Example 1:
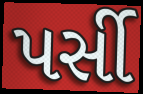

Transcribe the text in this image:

પર્સી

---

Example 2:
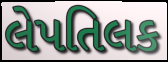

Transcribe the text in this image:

લેપતિલક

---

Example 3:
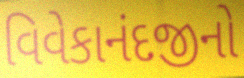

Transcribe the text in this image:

વિવેકાનંદજીનો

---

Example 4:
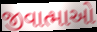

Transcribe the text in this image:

જીવાત્માઓ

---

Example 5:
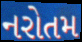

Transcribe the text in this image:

નરોતમ